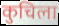
कुचिला